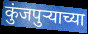
कुंजपुऱ्याच्या